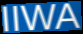
IIWA